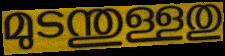
മുടന്തുള്ളതു